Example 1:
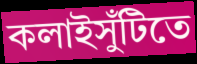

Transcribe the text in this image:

কলাইসুঁটিতে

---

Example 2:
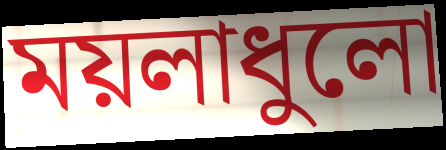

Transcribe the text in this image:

ময়লাধুলো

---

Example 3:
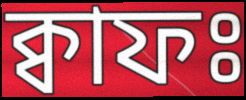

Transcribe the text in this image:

ক্বাফঃ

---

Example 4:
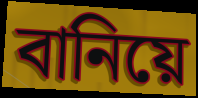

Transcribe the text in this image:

বানিয়ে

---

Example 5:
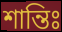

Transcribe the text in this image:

শান্তিঃ